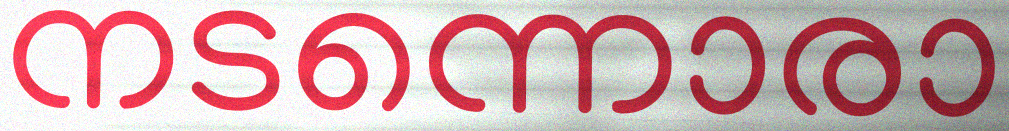
നടന്നൊരാ